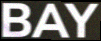
BAY